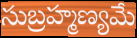
సుబ్రహ్మణ్యమే